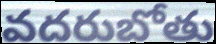
వదరుబోతు